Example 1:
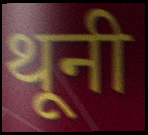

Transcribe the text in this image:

थूनी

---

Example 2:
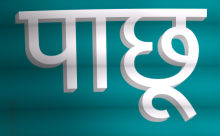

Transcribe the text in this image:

पाछू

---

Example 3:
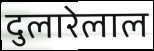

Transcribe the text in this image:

दुलारेलाल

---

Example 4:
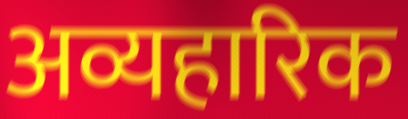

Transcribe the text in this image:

अव्यहारिक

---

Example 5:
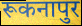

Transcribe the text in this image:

रूकनापुर